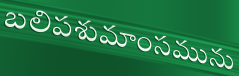
బలిపశుమాంసమును